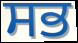
ਸਭ